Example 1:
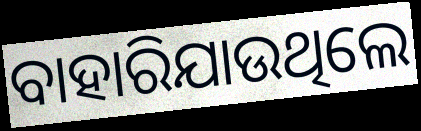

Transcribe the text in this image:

ବାହାରିଯାଉଥିଲେ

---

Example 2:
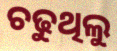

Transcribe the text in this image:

ଚଢୁଥିଲୁ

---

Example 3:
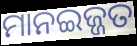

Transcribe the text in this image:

ମାନଇଜ୍ଜତ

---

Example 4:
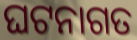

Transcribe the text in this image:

ଘଟନାଗତ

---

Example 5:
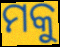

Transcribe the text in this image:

ମକୁ